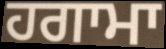
ਹਗਾਮਾ